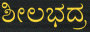
ಶೀಲಭದ್ರ